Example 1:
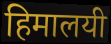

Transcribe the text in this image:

हिमालयी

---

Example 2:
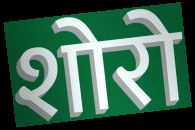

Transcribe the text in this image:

शोरो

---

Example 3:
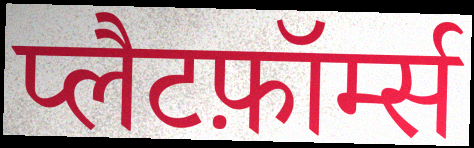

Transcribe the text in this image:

प्लैटफ़ॉर्म्स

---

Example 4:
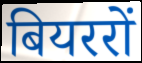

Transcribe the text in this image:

बियररों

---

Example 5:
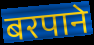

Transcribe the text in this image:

बरपाने